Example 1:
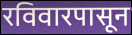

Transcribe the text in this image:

रविवारपासून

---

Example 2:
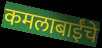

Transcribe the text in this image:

कमलाबाईंचे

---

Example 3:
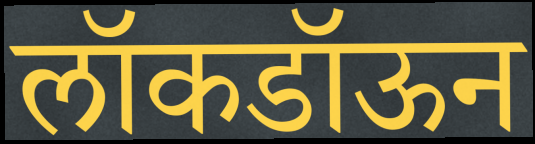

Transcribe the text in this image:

लॉकडॉऊन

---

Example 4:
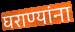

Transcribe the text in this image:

घराण्यांना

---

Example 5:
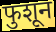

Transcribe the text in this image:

फुशून